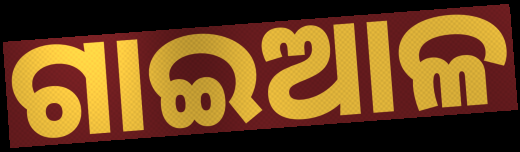
ଗାଇଆଳ